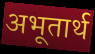
अभूतार्थ